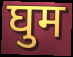
घुम